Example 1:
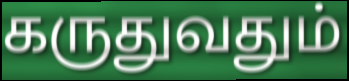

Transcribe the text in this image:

கருதுவதும்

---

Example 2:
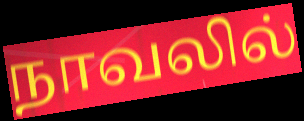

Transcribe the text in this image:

நாவலில்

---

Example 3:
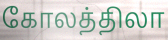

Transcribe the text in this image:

கோலத்திலா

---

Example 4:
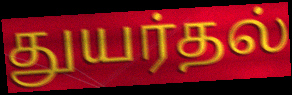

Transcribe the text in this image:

துயர்தல்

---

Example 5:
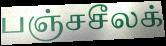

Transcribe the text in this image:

பஞ்சசீலக்